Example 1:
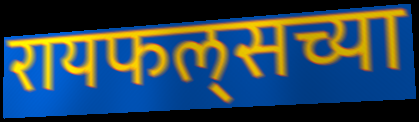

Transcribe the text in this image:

रायफल्सच्या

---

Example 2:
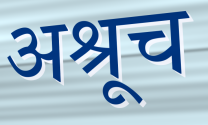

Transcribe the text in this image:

अश्रूच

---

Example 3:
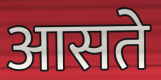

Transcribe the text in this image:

आसते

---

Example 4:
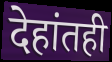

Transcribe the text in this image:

देहांतही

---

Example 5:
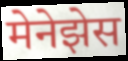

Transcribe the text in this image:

मेनेझेस